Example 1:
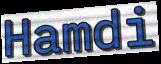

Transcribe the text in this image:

Hamdi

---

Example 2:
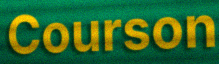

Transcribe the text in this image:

Courson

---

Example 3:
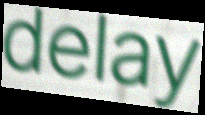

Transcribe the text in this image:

delay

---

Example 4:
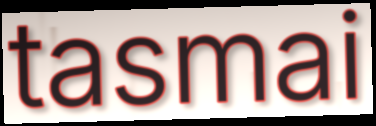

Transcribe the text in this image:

tasmai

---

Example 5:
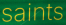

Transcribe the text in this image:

saints